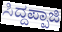
ಸಿದ್ದಪ್ಪಾಜಿ